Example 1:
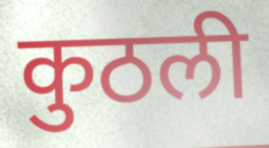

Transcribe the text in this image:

कुठली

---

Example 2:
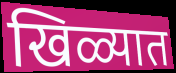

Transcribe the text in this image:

खिळ्यात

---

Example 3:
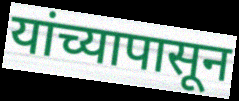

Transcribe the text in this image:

यांच्यापासून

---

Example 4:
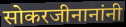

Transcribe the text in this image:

सोकरजीनानांनी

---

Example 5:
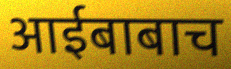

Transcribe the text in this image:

आईबाबाच